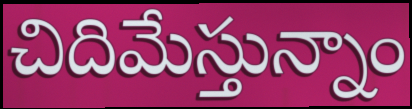
చిదిమేస్తున్నాం